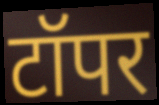
टॉपर